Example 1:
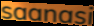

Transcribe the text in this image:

saanasi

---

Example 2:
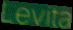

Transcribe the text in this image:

Levita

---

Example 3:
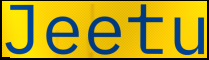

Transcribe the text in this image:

Jeetu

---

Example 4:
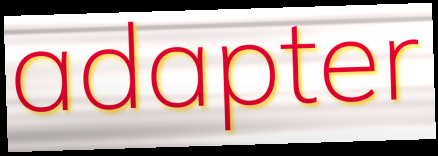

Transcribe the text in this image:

adapter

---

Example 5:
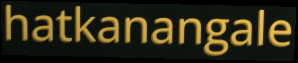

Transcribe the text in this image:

hatkanangale